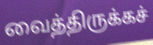
வைத்திருக்கச்